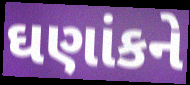
ઘણાંકને